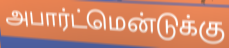
அபார்ட்மென்டுக்கு